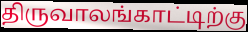
திருவாலங்காட்டிற்கு